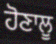
ਹੋਣਾਲੂ